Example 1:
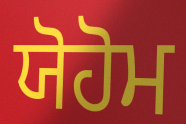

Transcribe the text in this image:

ਯੋਹੋਮ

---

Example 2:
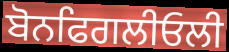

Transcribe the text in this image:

ਬੋਨਫਿਗਲੀਓਲੀ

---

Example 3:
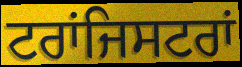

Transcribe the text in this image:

ਟਰਾਂਜਿਸਟਰਾਂ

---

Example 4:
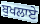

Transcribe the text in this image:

ਬੁਖਲਾਏ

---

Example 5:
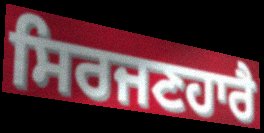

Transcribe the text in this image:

ਸਿਰਜਣਹਾਰੈ